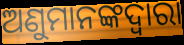
ଅଣୁମାନଙ୍କଦ୍ଵାରା